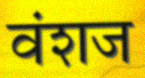
वंशज